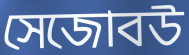
সেজোবউ